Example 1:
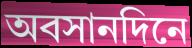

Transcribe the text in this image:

অবসানদিনে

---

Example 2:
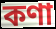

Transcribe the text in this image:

কণা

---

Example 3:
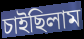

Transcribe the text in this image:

চাইছিলাম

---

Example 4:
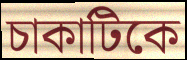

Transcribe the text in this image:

চাকাটিকে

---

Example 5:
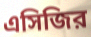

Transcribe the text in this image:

এসিজির